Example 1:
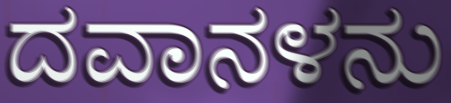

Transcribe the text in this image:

ದವಾನಳನು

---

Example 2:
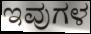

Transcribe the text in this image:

ಇವುಗಳ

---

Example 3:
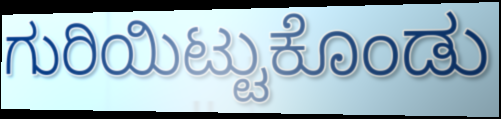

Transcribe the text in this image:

ಗುರಿಯಿಟ್ಟುಕೊಂಡು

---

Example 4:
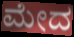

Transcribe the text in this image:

ಮೇದ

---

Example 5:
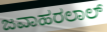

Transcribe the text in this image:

ಜವಾಹರಲಾಲ್